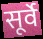
सूर्वे